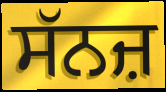
ਸੱਨਜ਼